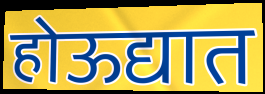
होऊद्यात